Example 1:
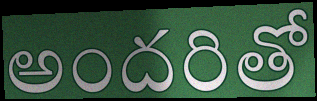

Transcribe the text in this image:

అందరితో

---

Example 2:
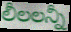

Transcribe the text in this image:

లీలలన్నీ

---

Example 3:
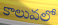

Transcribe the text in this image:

కాలువలో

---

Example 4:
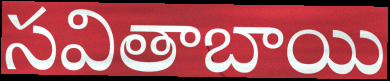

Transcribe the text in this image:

సవితాబాయి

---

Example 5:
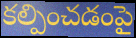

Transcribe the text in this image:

కల్పించడంపై